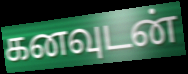
கனவுடன்